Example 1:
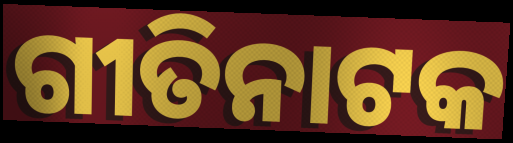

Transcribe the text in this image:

ଗୀତିନାଟକ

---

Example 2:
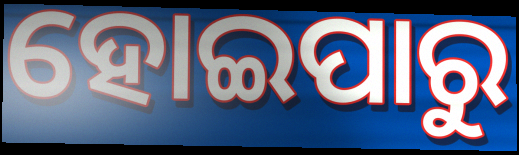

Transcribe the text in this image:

ହୋଇପାରୁ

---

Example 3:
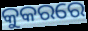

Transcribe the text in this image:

କୁକରରେ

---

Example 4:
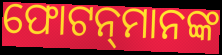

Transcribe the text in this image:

ଫୋଟନ୍‍ମାନଙ୍କ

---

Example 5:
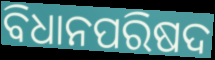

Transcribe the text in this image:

ବିଧାନପରିଷଦ